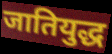
जातियुद्ध